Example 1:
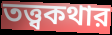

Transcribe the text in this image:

তত্ত্বকথার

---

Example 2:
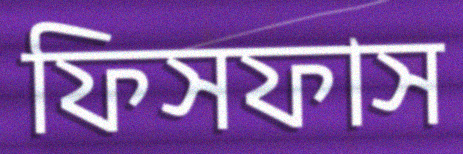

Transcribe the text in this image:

ফিসফাস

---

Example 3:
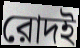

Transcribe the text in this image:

রোদই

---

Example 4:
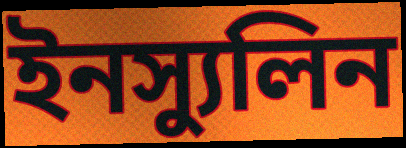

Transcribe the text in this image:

ইনস্যুলিন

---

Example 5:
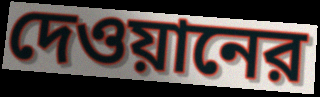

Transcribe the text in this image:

দেওয়ানের